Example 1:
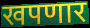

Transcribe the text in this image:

खपणार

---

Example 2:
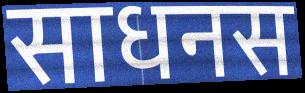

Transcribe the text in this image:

साधनस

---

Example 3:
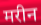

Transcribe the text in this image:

मरीन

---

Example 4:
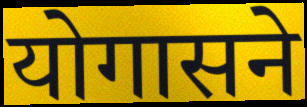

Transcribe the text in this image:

योगासने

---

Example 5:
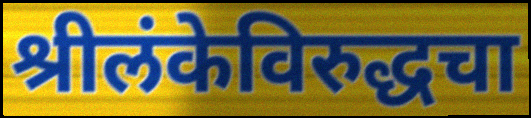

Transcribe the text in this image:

श्रीलंकेविरुद्धचा